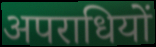
अपराधियों